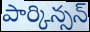
పార్కిన్సన్